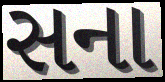
સના